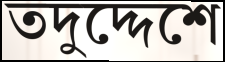
তদুদ্দেশে